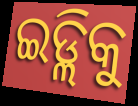
ଇଡ୍ଲିକୁ